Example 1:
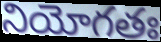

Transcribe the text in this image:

నియోగతః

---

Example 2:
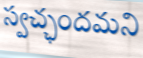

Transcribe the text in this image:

స్వచ్ఛందమని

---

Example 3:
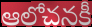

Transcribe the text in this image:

ఆలోచనకీ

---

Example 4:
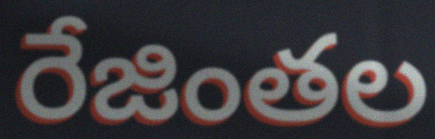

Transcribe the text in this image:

రేజింతల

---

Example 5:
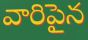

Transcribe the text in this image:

వారిపైన